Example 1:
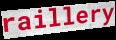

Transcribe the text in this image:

raillery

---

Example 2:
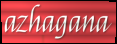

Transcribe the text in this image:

azhagana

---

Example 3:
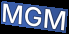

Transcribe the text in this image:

MGM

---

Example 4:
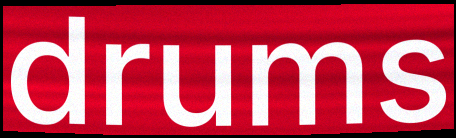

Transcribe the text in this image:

drums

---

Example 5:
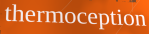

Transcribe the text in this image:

thermoception